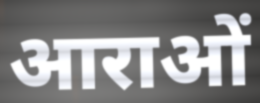
आराओं